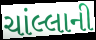
ચાંલ્લાની